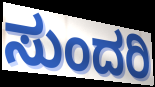
ಸುಂದರಿ